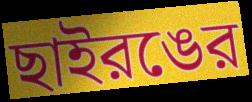
ছাইরঙের